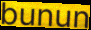
bunun